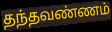
தந்தவண்ணம்